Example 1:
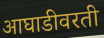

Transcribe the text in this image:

आघाडीवरती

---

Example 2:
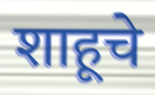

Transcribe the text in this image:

शाहूचे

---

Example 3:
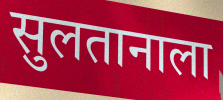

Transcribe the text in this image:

सुलतानाला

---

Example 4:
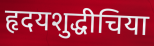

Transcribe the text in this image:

हृदयशुद्धीचिया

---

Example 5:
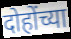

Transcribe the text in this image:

दोहोंच्या